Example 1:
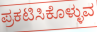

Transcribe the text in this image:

ಪ್ರಕಟಿಸಿಕೊಳ್ಳುವ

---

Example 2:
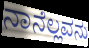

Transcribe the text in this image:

ನಾನೆಲ್ಲವನು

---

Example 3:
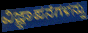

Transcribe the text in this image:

ವಿಜ್ಞಾಪನೆಗಳನ್ನು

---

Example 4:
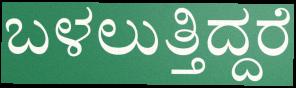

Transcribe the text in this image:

ಬಳಲುತ್ತಿದ್ದರೆ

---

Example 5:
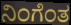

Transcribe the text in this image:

ನಿಂಗೆಂತ